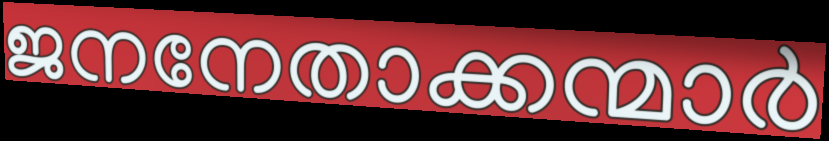
ജനനേതാക്കന്മാർ